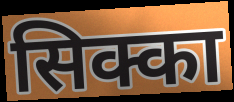
सिक्का